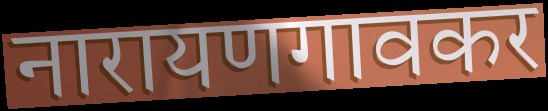
नारायणगावकर